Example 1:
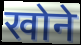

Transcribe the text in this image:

खोने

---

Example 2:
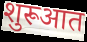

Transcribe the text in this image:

शुरूआत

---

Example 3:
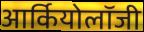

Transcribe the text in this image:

आर्कियोलॉजी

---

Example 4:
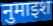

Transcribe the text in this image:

नुमाइश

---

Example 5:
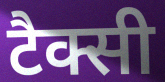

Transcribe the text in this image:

टैक्सी